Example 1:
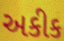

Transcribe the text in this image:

અકીક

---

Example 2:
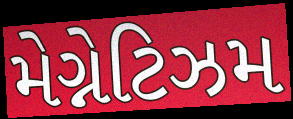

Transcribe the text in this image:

મેગ્નેટિઝમ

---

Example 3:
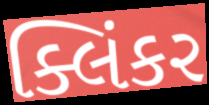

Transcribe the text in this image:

ક્લિંકર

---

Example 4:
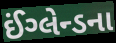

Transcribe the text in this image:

ઈંગ્લેન્ડના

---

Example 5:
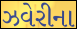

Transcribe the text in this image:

ઝવેરીના